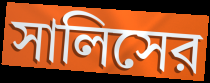
সালিসের